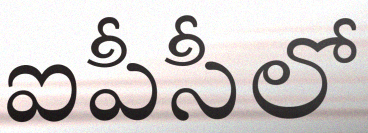
ఐపీసీలో